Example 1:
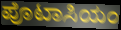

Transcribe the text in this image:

ಪೊಟಾಸಿಯಂ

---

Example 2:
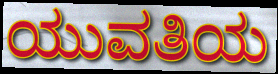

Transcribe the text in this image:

ಯುವತಿಯ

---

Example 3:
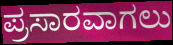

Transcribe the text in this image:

ಪ್ರಸಾರವಾಗಲು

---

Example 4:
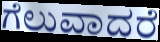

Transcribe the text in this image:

ಗೆಲುವಾದರೆ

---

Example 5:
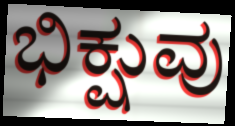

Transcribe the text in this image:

ಭಿಕ್ಷುವು